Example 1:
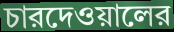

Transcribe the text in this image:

চারদেওয়ালের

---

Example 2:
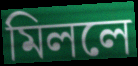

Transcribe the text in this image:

মিললে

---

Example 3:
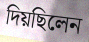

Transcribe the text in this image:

দিয়ছিলেন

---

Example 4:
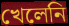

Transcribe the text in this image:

খেলেনি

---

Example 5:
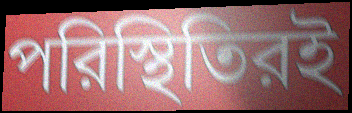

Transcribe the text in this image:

পরিস্থিতিরই